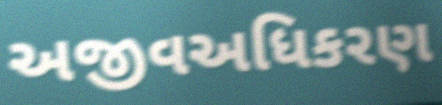
અજીવઅધિકરણ